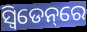
ସ୍ୱିଡେନ୍‌ରେ